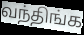
வந்திங்க